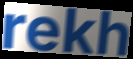
rekh